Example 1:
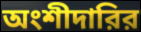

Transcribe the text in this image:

অংশীদারির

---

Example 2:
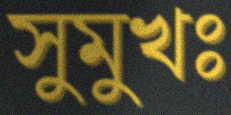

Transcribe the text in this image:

সুমুখঃ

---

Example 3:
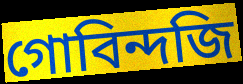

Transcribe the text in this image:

গোবিন্দজি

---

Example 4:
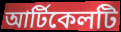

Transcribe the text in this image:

আর্টিকেলটি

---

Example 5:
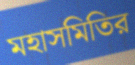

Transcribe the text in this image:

মহাসমিতির